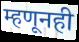
म्हणूनही